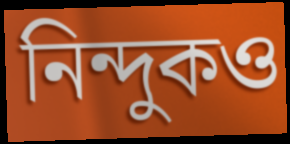
নিন্দুকও